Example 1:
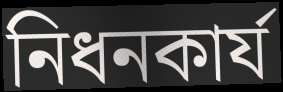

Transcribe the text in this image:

নিধনকার্য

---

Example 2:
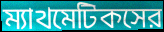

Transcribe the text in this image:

ম্যাথমেটিকসের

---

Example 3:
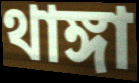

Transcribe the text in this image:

থাঙ্গা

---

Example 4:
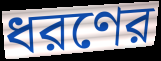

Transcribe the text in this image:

ধরণের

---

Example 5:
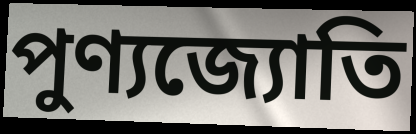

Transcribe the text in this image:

পুণ্যজ্যোতি